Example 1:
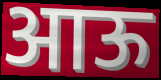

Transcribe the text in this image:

आऊ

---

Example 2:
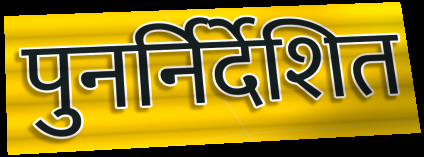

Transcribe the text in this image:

पुनर्निर्देशित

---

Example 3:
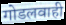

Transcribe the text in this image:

गोडलवाही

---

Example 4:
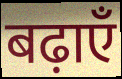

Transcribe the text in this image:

बढ़ाएँ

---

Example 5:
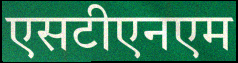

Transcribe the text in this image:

एसटीएनएम